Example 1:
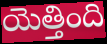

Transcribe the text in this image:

యెత్తింది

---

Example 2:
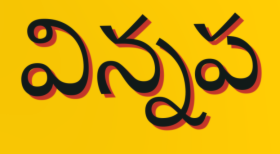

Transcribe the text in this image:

విన్నప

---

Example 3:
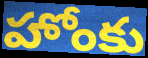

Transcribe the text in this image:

హోంకు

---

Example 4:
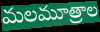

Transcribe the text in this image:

మలమూత్రాల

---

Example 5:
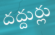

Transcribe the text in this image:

దద్దుర్లు